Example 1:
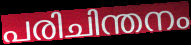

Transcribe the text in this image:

പരിചിന്തനം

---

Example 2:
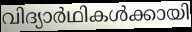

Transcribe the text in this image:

വിദ്യാർഥികൾക്കായി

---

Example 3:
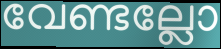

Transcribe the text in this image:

വേണ്ടല്ലോ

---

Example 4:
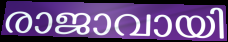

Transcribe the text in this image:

രാജാവായി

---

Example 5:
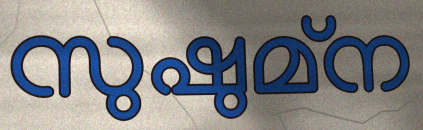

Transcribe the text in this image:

സുഷുമ്ന